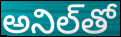
అనిల్‌తో